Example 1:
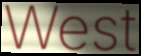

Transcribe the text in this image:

West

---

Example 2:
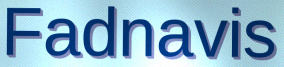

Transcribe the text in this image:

Fadnavis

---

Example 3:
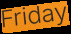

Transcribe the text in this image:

Friday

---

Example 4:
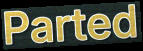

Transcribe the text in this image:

Parted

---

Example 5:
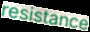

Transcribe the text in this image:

resistance